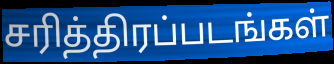
சரித்திரப்படங்கள்